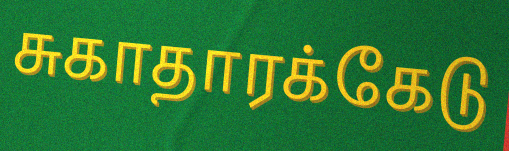
சுகாதாரக்கேடு